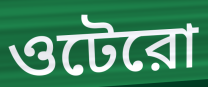
ওটেরো